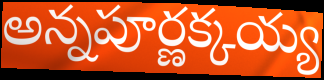
అన్నపూర్ణక్కయ్య